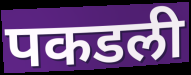
पकडली